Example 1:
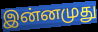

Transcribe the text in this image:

இன்னமுது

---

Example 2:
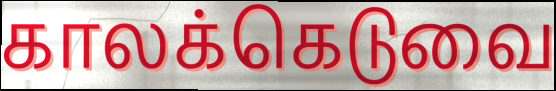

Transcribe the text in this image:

காலக்கெடுவை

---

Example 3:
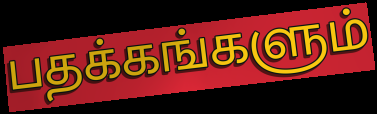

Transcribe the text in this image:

பதக்கங்களும்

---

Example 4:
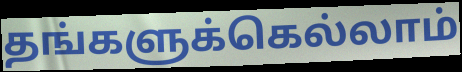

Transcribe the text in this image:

தங்களுக்கெல்லாம்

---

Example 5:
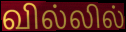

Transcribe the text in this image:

வில்லில்